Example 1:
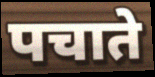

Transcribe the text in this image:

पचाते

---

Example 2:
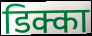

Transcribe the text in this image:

डिक्का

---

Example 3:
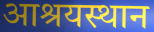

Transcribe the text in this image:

आश्रयस्थान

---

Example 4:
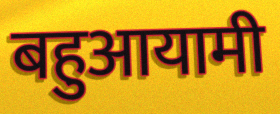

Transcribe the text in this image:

बहुआयामी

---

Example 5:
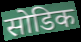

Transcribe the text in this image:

सोडिक